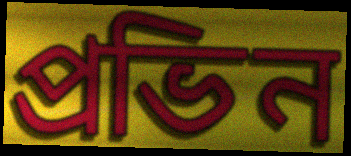
প্রভিন